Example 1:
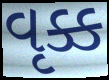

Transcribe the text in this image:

વૃક્ક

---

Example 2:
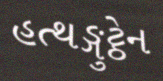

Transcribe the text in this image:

હત્થઙ્ગુટ્ઠેન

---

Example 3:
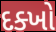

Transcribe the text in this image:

દક્ખો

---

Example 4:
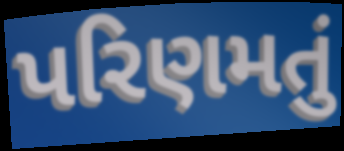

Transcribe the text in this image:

પરિણમતું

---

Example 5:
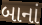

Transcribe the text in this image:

બાનાં